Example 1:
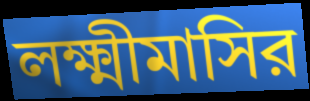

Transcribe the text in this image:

লক্ষ্মীমাসির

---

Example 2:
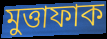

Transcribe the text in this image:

মুত্তাফাক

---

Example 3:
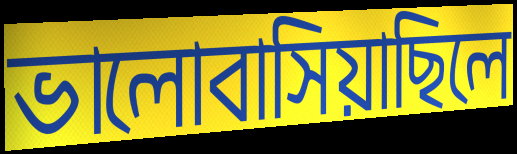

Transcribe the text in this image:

ভালোবাসিয়াছিলে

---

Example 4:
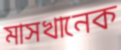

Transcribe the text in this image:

মাসখানেক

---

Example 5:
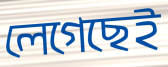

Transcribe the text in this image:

লেগেছেই